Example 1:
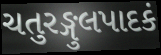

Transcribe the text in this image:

ચતુરઙ્ગુલપાદકં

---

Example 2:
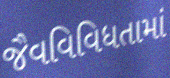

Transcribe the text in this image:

જૈવવિવિધતામાં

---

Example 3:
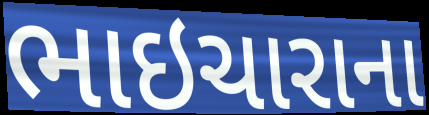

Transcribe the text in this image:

ભાઇચારાના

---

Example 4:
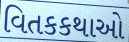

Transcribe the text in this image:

વિતકકથાઓ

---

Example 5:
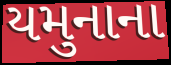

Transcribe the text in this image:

યમુનાના